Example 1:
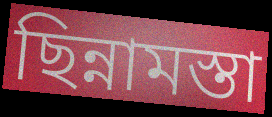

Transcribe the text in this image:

ছিন্নামস্তা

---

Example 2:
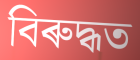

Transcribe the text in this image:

বিৰুদ্ধত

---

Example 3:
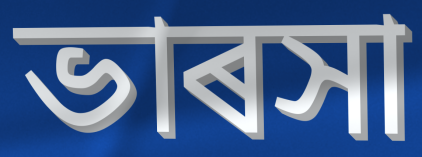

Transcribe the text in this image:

ভাৰসা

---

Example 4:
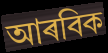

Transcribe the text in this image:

আৰবিক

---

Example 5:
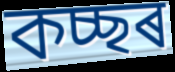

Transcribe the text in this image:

কচ্ছৰ